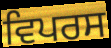
ਵਿਪਰਸ